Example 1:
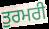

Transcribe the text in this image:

ਤੁਰਮਰੀ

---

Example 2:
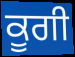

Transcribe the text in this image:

ਕੂਗੀ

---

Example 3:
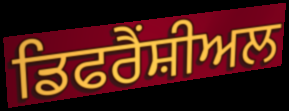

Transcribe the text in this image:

ਡਿਫਰੈਂਸ਼ੀਅਲ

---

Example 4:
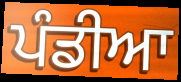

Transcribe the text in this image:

ਪੰਡੀਆ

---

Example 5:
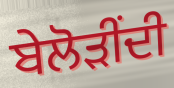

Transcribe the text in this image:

ਬੇਲੋੜੀਂਦੀ